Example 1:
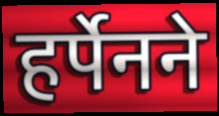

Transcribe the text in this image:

हर्पेनने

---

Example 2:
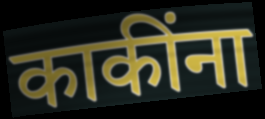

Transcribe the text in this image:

काकींना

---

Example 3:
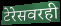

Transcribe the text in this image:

टेरेसवरही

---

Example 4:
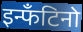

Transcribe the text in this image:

इन्फँटिनो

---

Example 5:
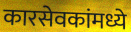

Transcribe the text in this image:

कारसेवकांमध्ये